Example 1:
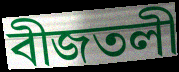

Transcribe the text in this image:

বীজতলী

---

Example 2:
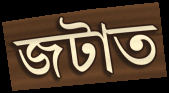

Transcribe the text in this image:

জটাত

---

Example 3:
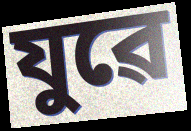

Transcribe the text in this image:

যুৱে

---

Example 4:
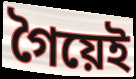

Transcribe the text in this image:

গৈয়েই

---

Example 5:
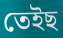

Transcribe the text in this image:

তেইছ